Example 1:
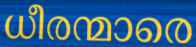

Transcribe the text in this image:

ധീരന്മാരെ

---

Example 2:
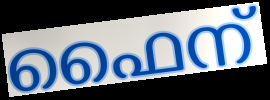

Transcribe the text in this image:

ഫൈന്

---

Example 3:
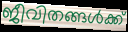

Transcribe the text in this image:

ജീവിതങ്ങൾക്ക്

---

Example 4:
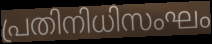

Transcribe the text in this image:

പ്രതിനിധിസംഘം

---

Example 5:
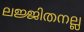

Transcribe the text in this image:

ലജ്ജിതനല്ല